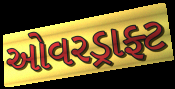
ઓવરડ્રાફ્ટ